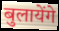
बुलायेंगे